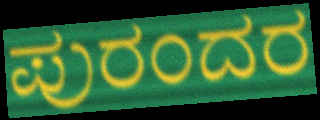
ಪುರಂದರ